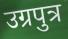
उग्रपुत्र